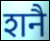
शनै